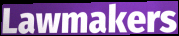
Lawmakers